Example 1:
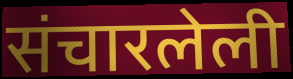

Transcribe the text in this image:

संचारलेली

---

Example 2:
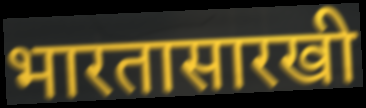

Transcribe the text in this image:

भारतासारखी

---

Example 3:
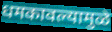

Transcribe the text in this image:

धमकावल्यामुळे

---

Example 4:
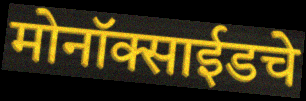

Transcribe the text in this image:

मोनॉक्साईडचे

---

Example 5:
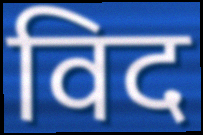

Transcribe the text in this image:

विद